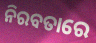
ନିରବତାରେ